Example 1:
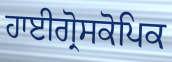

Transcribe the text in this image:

ਹਾਈਗ੍ਰੋਸਕੋਪਿਕ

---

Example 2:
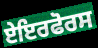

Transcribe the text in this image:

ਏਇਰਫੋਰਸ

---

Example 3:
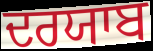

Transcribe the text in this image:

ਦਰਯਾਬ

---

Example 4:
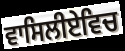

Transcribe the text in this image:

ਵਾਸਿਲੀਏਵਿਚ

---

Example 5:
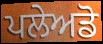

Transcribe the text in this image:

ਪਲੇਅਡੋ